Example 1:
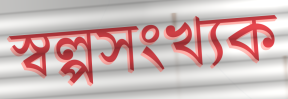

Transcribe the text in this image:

স্বল্পসংখ্যক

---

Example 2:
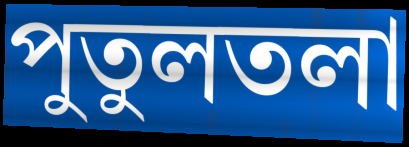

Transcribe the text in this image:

পুতুলতলা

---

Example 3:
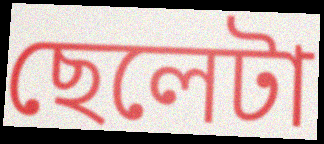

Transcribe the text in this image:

ছেলেটা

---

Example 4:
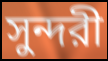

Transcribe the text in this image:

সুন্দরী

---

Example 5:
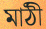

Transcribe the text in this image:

মাঠী